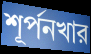
শূর্পনখার